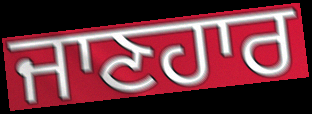
ਜਾਣਹਾਰ